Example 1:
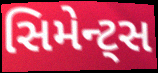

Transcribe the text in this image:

સિમેન્ટ્સ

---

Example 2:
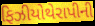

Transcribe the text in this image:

ફિઝીયોથેરાપીની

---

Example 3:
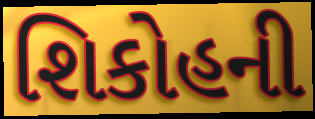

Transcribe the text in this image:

શિકોહની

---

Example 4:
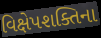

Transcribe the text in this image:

વિક્ષેપશક્તિના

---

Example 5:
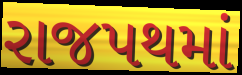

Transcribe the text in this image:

રાજપથમાં